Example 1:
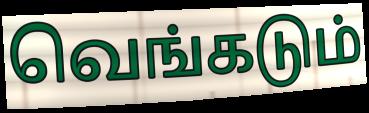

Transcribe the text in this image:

வெங்கடும்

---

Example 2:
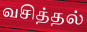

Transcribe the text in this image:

வசித்தல்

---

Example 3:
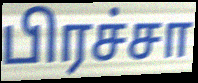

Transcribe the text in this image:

பிரச்சா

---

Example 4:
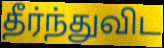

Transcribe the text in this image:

தீர்ந்துவிட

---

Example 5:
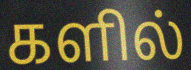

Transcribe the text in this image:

களில்